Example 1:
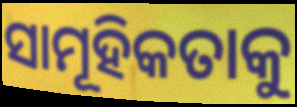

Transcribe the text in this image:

ସାମୂହିକତାକୁ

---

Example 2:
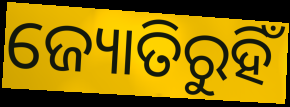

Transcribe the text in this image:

ଜ୍ୟୋତିରୁହିଁ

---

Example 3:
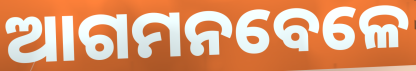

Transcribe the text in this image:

ଆଗମନବେଳେ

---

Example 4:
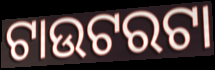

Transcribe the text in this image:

ଟାଉଟରଟା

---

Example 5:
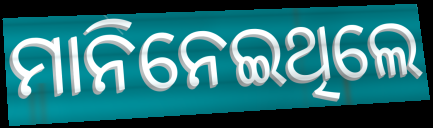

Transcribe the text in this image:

ମାନିନେଇଥିଲେ